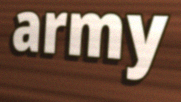
army